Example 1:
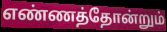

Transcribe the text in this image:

எண்ணத்தோன்றும்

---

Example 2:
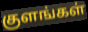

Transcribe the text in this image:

குளங்கள்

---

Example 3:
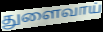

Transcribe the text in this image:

துளைவாய்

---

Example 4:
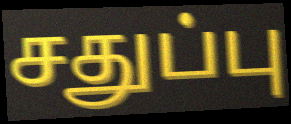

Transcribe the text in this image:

சதுப்பு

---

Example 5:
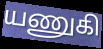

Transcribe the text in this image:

யணுகி